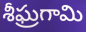
శీఘ్రగామి